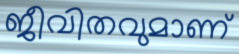
ജീവിതവുമാണ്